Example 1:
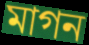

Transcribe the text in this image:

মাগন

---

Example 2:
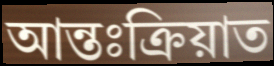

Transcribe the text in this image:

আন্তঃক্ৰিয়াত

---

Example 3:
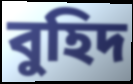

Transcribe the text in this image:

বুহিদ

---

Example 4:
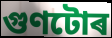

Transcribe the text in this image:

গুণটোৰ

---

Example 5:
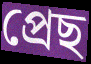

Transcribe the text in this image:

প্ৰেছ